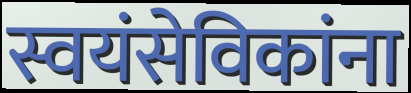
स्वयंसेविकांना